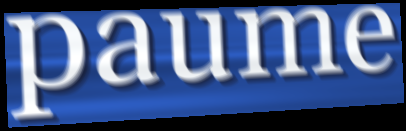
paume